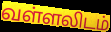
வள்ளலிடம்